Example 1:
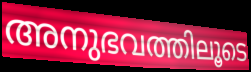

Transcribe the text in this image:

അനുഭവത്തിലൂടെ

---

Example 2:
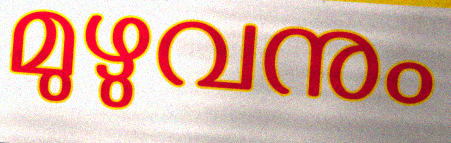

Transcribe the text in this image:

മുഴുവനും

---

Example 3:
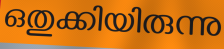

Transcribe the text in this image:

ഒതുക്കിയിരുന്നു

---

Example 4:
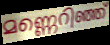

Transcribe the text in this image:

മണ്ണെറിഞ്ഞ്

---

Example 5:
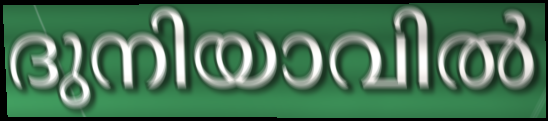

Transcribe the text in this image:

ദുനിയാവിൽ